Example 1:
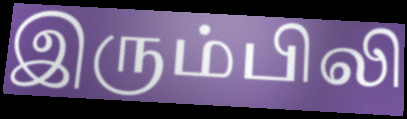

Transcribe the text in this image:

இரும்பிலி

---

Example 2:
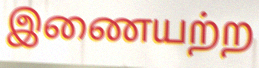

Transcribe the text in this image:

இணையற்ற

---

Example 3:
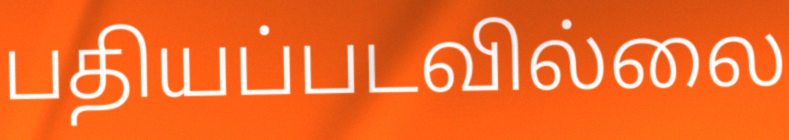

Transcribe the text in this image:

பதியப்படவில்லை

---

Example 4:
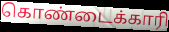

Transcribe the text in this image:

கொண்டைக்காரி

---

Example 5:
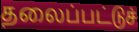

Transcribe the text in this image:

தலைப்பட்டுச்